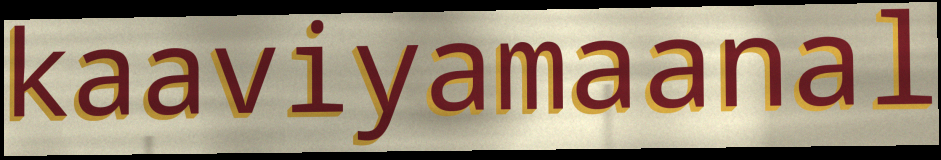
kaaviyamaanal